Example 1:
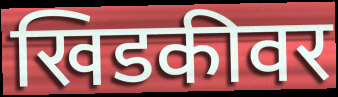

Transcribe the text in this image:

खिडकीवर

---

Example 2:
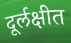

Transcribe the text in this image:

दूर्लक्षीत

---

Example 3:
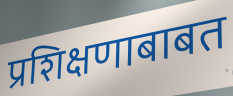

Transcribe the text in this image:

प्रशिक्षणाबाबत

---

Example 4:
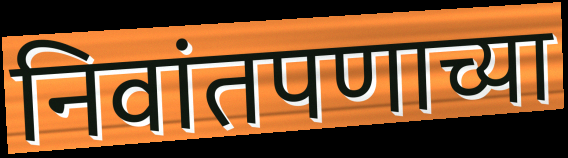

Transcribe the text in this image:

निवांतपणाच्या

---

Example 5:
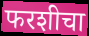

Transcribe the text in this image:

फरशीचा